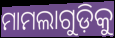
ମାମଲାଗୁଡ଼ିକୁ